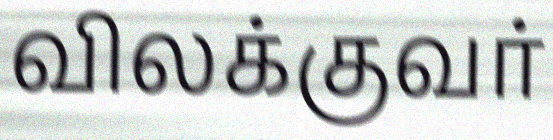
விலக்குவர்